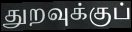
துறவுக்குப்